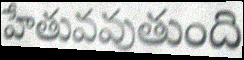
హేతువవుతుంది